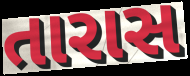
તારાસ